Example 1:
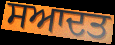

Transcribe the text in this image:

ਸਆਦਤ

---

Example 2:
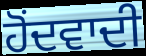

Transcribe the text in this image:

ਹੋਂਦਵਾਦੀ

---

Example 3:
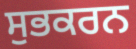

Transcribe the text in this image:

ਸੁਭਕਰਨ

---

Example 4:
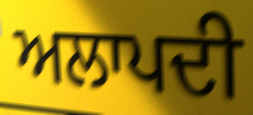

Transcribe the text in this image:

ਅਲਾਪਦੀ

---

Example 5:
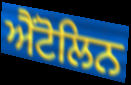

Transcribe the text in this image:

ਐਂਟੋਲਿਨ